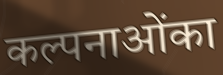
कल्पनाओंका